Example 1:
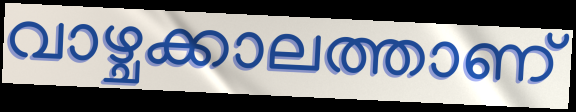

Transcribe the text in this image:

വാഴ്ചക്കാലത്താണ്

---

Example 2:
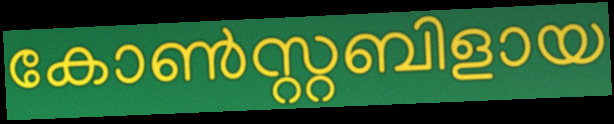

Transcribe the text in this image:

കോൺസ്റ്റബിളായ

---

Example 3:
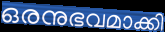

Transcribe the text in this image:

ഒരനുഭവമാക്കി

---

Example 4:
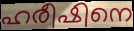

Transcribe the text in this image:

ഹരീഷിനെ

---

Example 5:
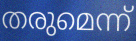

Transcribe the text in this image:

തരുമെന്ന്